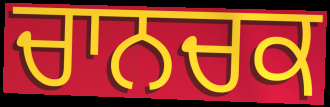
ਚਾਨਚਕ